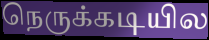
நெருக்கடியில